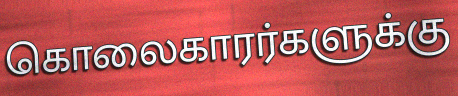
கொலைகாரர்களுக்கு